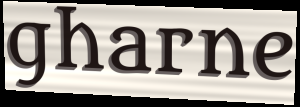
gharne